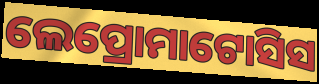
ଲେପ୍ରୋମାଟୋସିସ